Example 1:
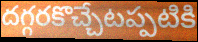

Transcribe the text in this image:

దగ్గరకొచ్చేటప్పటికి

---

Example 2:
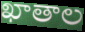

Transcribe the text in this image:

ఖాతాల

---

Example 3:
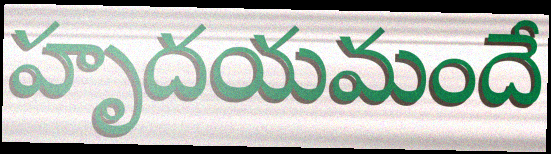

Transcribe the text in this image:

హృదయమందే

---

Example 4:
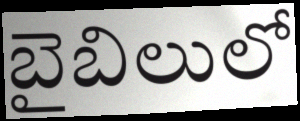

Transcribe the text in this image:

బైబిలులో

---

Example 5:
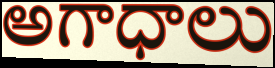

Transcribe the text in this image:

అగాధాలు